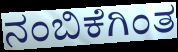
ನಂಬಿಕೆಗಿಂತ